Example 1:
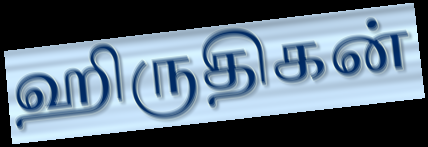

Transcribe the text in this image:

ஹிருதிகன்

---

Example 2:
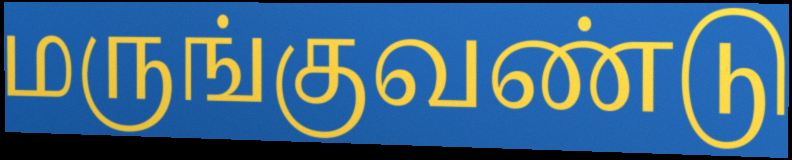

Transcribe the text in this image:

மருங்குவண்டு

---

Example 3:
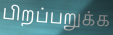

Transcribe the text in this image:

பிறப்பறுக்க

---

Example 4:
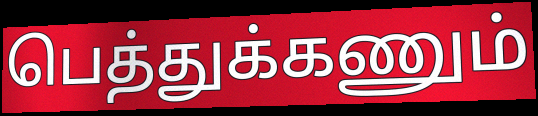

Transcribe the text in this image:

பெத்துக்கணும்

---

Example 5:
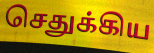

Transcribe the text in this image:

செதுக்கிய